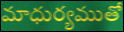
మాధుర్యముతో